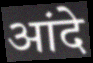
आंदे